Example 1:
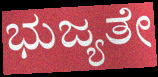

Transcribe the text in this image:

ಭುಜ್ಯತೇ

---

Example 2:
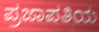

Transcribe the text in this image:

ಪ್ರಜಾಪತಿಯ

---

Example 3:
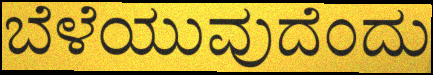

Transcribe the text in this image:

ಬೆಳೆಯುವುದೆಂದು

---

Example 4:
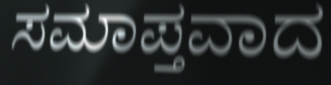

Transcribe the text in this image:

ಸಮಾಪ್ತವಾದ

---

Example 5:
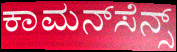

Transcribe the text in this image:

ಕಾಮನ್‌ಸೆನ್ಸ್